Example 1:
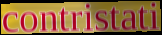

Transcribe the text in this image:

contristati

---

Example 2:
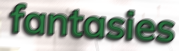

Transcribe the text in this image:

fantasies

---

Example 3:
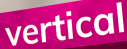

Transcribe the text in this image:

vertical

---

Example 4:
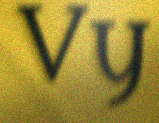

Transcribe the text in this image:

Vy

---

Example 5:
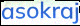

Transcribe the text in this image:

asokraj